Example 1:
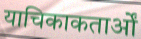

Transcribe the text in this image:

याचिकाकतार्ओं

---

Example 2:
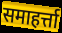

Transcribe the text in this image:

समाहर्त्ता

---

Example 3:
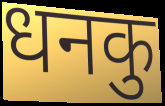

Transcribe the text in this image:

धनकु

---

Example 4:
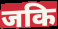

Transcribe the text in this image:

जकि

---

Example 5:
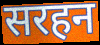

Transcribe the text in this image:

सरहन